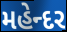
મહેન્દર